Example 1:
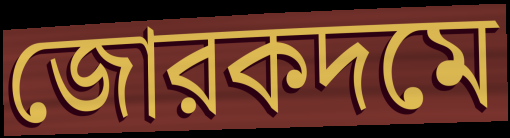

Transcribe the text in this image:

জোরকদমে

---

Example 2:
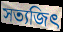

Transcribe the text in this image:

সত্যজিৎ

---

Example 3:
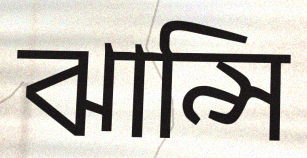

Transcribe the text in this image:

ঝান্সি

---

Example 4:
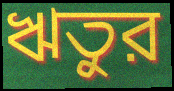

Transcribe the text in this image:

ঋতুর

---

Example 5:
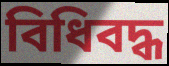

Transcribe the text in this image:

বিধিবদ্ধ